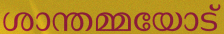
ശാന്തമ്മയോട്